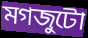
মগজুটো